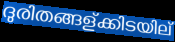
ദുരിതങ്ങള്ക്കിടയില്